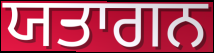
ਯਤਾਗਨ